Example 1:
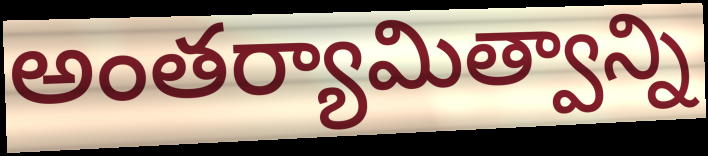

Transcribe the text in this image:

అంతర్యామిత్వాన్ని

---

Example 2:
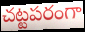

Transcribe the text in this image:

చట్టపరంగా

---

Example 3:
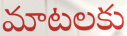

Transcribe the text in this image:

మాటలకు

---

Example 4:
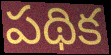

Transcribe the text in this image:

పథిక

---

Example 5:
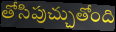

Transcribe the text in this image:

తోసిపుచ్చుతోంది